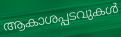
ആകാശപ്പടവുകൾ